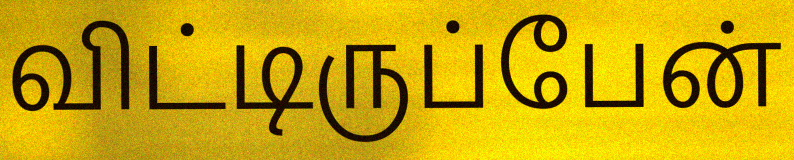
விட்டிருப்பேன்